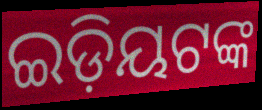
ଇଡ଼ିୟଟଙ୍କ